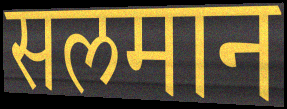
सलमान